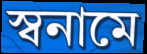
স্বনামে